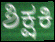
ಶಿಕ್ಷಕಿ